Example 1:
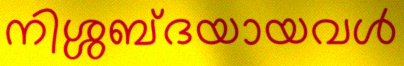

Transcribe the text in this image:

നിശ്ശബ്ദയായവൾ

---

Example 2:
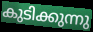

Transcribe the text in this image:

കുടിക്കുന്നു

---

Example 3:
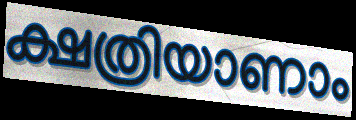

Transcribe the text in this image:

ക്ഷത്രിയാണാം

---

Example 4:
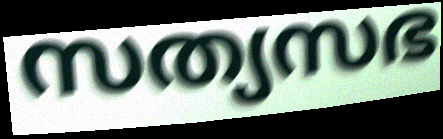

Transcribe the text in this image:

സത്യസഭ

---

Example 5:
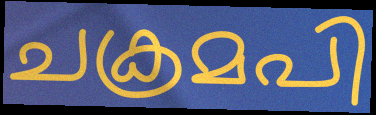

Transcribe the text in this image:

ചക്രമപി